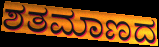
ಶತಮಾಣದ